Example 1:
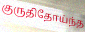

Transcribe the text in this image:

குருதிதோய்ந்த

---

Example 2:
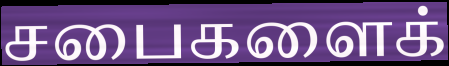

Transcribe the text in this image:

சபைகளைக்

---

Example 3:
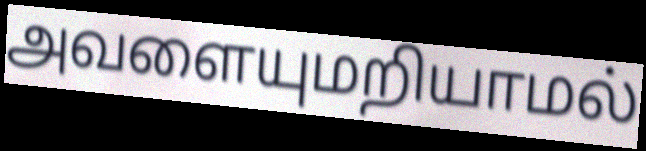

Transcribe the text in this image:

அவளையுமறியாமல்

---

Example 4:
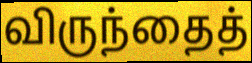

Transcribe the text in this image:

விருந்தைத்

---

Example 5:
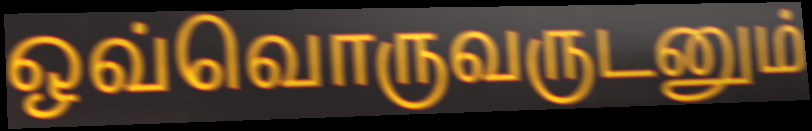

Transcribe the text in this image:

ஒவ்வொருவருடனும்